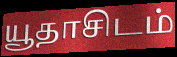
யூதாசிடம்